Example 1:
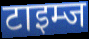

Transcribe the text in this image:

टाइम्ज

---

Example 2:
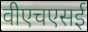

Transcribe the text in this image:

वीएचएसई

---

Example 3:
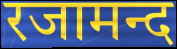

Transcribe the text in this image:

रजामन्द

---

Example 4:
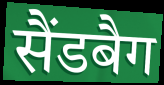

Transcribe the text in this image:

सैंडबैग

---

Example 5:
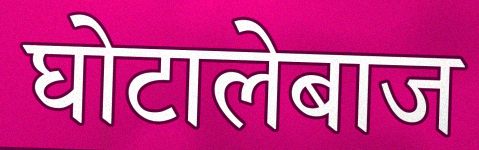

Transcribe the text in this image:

घोटालेबाज